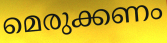
മെരുക്കണം